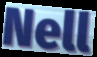
Nell